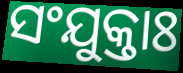
ସଂଯୁକ୍ତାଃ